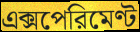
এক্সপেরিমেণ্ট